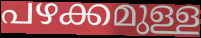
പഴക്കമുള്ള